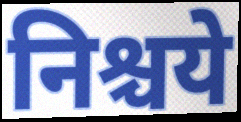
निश्चये